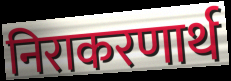
निराकरणार्थ